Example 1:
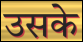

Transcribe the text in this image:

उसके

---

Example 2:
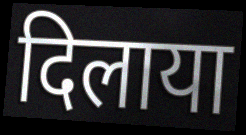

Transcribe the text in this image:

दिलाया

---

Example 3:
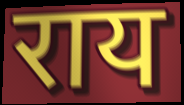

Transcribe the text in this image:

राय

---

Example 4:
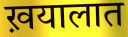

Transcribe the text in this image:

ख़यालात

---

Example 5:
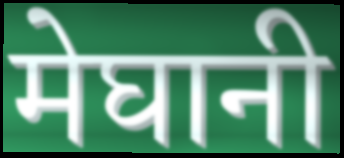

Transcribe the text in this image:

मेघानी